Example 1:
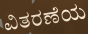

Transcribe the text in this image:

ವಿತರಣೆಯ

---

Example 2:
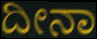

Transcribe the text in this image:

ದೀನಾ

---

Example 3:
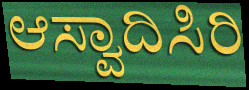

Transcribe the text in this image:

ಆಸ್ವಾದಿಸಿರಿ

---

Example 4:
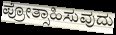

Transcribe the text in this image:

ಪ್ರೋತ್ಸಾಹಿಸುವುದು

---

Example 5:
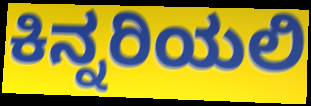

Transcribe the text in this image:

ಕಿನ್ನರಿಯಲಿ